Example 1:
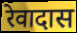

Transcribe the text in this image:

रेवादास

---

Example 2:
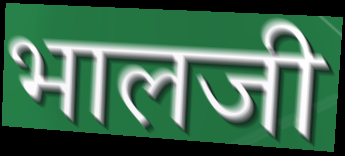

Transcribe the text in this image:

भालजी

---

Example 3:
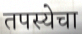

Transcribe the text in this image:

तपस्येचा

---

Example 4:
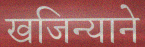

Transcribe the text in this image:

खजिन्याने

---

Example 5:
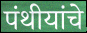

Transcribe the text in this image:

पंथीयांचे